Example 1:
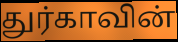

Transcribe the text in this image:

துர்காவின்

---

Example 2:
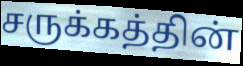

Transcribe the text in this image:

சருக்கத்தின்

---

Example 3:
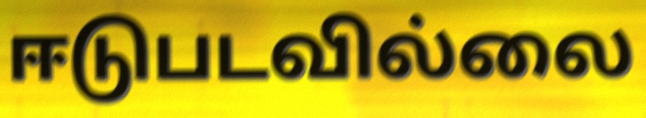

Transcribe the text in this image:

ஈடுபடவில்லை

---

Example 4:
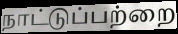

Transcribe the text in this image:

நாட்டுப்பற்றை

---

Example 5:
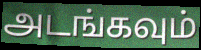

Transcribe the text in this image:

அடங்கவும்